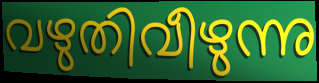
വഴുതിവീഴുന്നു